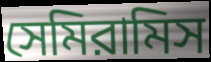
সেমিরামিস